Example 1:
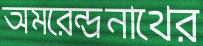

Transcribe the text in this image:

অমরেন্দ্রনাথের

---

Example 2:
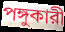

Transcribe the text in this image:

পঙ্গুকারী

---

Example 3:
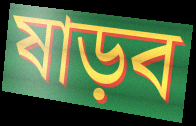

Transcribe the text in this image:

ষাড়ব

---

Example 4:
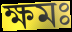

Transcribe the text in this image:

ক্ষমঃ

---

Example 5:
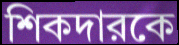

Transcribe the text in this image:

শিকদারকে